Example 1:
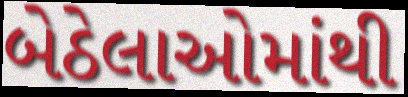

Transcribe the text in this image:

બેઠેલાઓમાંથી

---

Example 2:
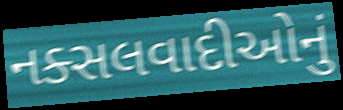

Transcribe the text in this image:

નક્સલવાદીઓનું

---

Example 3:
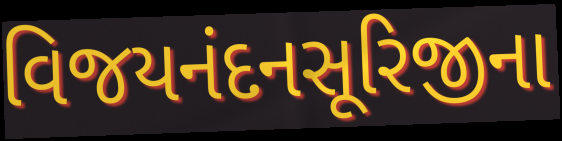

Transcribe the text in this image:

વિજયનંદનસૂરિજીના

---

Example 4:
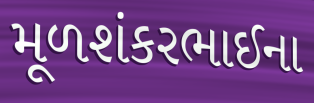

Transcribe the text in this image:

મૂળશંકરભાઈના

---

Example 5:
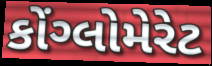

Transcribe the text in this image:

કોંગ્લોમેરેટ